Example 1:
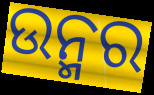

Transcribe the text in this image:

ଉନ୍ମର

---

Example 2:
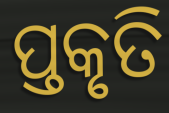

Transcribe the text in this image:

ପ୍ତକୃତି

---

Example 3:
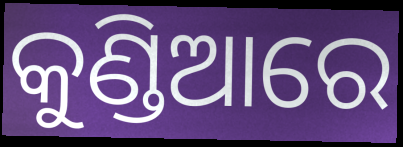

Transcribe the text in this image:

କୁଣ୍ଡିଆରେ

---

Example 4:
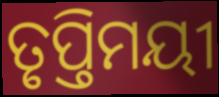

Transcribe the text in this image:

ତୃପ୍ତିମୟୀ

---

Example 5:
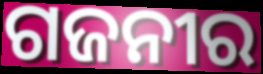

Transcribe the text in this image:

ଗଜନୀର